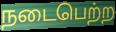
நடைபெற்ற